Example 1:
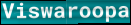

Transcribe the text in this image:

Viswaroopa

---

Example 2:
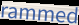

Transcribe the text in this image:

rammed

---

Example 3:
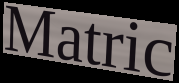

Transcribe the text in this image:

Matric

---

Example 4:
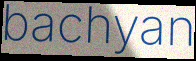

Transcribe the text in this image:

bachyan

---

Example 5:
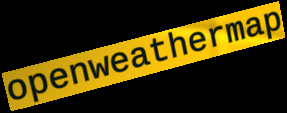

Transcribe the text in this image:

openweathermap